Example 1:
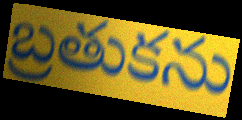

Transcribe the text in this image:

బ్రతుకను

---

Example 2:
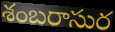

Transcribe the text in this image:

శంబరాసుర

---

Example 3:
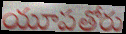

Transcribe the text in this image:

యూపతోరు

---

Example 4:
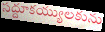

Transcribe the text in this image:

సద్దూకయ్యులకును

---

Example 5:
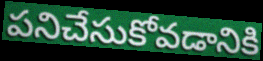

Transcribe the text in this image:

పనిచేసుకోవడానికి